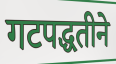
गटपद्धतीने